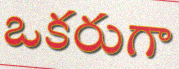
ఒకరుగా